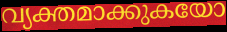
വ്യക്തമാക്കുകയോ